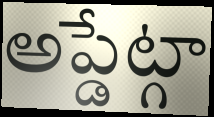
అప్డేట్గా